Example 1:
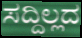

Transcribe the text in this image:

ಸದ್ದಿಲ್ಲದ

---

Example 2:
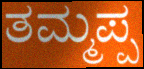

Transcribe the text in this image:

ತಮ್ಮಪ್ಪ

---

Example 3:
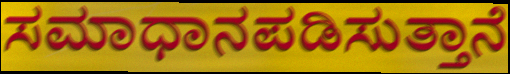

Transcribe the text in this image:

ಸಮಾಧಾನಪಡಿಸುತ್ತಾನೆ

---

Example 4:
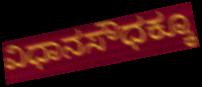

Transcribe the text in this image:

ವಿಧಾನಸೌಧಕ್ಕೂ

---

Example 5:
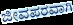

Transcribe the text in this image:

ಜೀವಪರವಾಗಿ